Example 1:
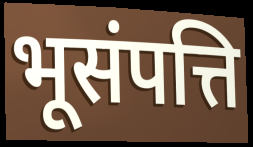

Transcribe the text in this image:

भूसंपत्ति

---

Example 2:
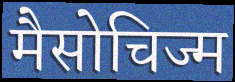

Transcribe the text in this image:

मैसोचिज्म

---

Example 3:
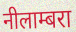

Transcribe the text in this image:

नीलाम्बरा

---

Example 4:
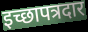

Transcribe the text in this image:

इच्छापत्रदार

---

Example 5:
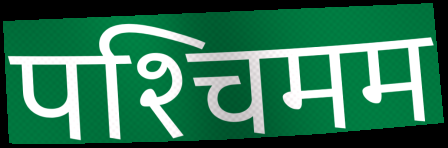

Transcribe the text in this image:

पश्चिमम